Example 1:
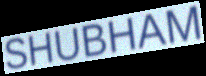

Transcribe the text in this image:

SHUBHAM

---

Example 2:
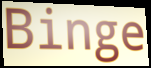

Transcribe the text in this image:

Binge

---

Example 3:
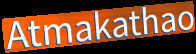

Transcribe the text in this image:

Atmakathao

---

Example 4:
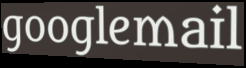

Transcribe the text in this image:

googlemail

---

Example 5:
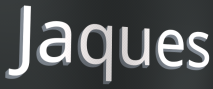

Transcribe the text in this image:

Jaques